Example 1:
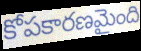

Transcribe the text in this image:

కోపకారణమైంది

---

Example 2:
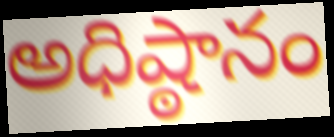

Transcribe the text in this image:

అధిష్ఠానం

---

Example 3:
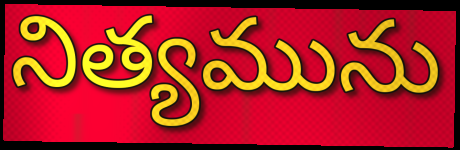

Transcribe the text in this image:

నిత్యమును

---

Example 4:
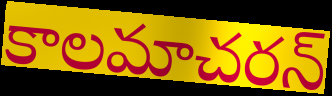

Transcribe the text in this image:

కాలమాచరన్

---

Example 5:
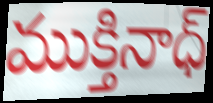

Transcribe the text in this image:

ముక్తినాధ్